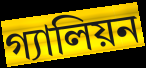
গ্যালিয়ন